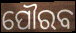
ପୌରବ